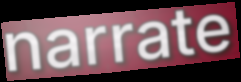
narrate